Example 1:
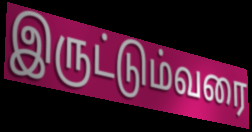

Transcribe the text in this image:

இருட்டும்வரை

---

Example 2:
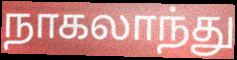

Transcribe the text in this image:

நாகலாந்து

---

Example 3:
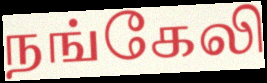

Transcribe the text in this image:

நங்கேலி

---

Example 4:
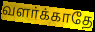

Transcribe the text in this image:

வளர்க்காதே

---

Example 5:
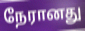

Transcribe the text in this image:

நேரானது